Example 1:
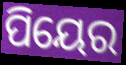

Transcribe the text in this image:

ପିୟେର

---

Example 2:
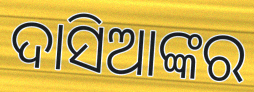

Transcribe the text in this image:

ଦାସିଆଙ୍କର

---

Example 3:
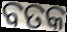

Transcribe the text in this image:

ବତକ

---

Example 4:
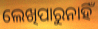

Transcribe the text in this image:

ଲେଖିପାରୁନାହିଁ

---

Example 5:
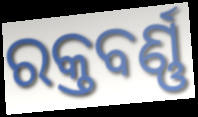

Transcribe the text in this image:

ରକ୍ତବର୍ଣ୍ଣ